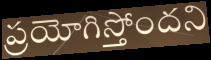
ప్రయోగిస్తోందని